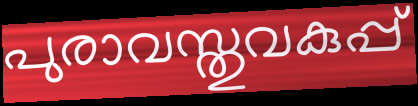
പുരാവസ്തുവകുപ്പ്